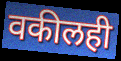
वकीलही